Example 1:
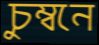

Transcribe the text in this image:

চুম্বনে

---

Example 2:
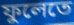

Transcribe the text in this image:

ফুলেতে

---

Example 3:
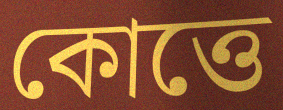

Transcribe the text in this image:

কোত্তে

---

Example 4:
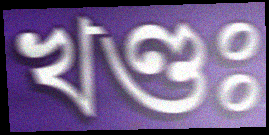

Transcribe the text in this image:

খণ্ডঃ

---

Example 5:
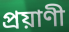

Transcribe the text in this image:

প্রয়াণী